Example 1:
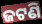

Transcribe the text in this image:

ଜଟଣି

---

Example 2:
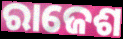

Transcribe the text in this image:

ରାଜେଶ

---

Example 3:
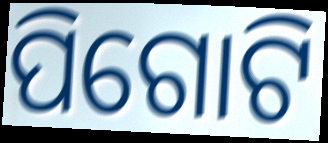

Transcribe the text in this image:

ପିଗୋଟି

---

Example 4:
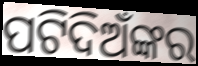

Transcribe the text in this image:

ପଟିଦିଅଁଙ୍କର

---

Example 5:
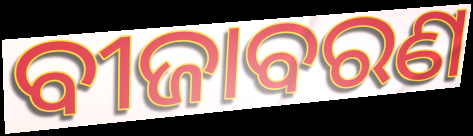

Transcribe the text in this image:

ବୀଜାବରଣ